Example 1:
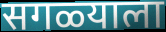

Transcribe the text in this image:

सगळ्याला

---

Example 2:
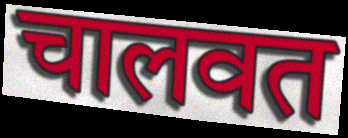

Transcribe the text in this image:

चालवत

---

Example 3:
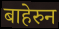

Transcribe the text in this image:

बाहेरुन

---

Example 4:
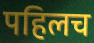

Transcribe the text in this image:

पहिलच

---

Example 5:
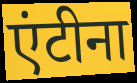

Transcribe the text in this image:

एंटीना